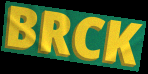
BRCK